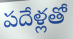
పదేళ్లతో